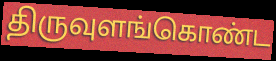
திருவுளங்கொண்ட